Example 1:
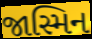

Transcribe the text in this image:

જાસ્મિન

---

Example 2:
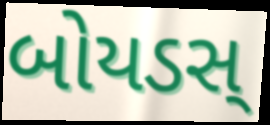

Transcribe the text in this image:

બોયડસ્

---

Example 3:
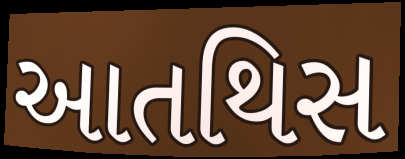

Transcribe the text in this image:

આતથિસ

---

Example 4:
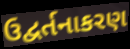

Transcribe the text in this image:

ઉદ્વર્તનાકરણ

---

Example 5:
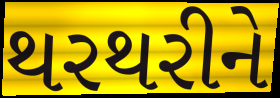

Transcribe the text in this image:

થરથરીને